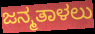
ಜನ್ಮತಾಳಲು